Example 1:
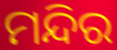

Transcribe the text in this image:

ମନ୍ଦିର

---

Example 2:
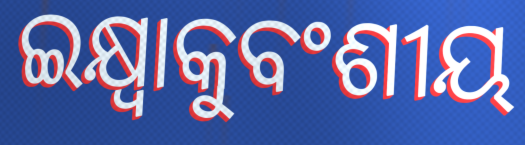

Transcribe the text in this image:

ଇକ୍ଷ୍ୱାକୁବଂଶୀୟ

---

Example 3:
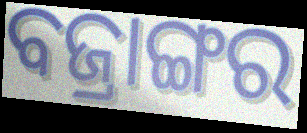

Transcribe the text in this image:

ବଜ୍ରାଙ୍ଗର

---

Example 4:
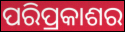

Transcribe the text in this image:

ପରିପ୍ରକାଶର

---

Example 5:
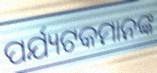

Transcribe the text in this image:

ପର୍ଯ୍ୟଟକମାନଙ୍କ